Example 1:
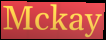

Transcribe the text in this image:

Mckay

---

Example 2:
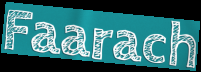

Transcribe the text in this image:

Faarach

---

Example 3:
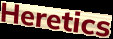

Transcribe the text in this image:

Heretics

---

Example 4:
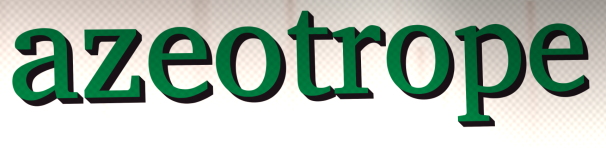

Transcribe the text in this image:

azeotrope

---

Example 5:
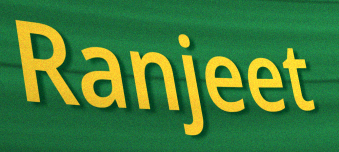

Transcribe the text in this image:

Ranjeet